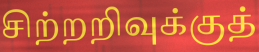
சிற்றறிவுக்குத்